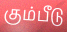
கும்பீடு